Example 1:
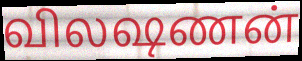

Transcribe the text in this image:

விலஷணன்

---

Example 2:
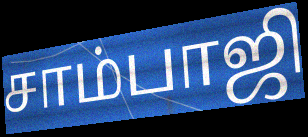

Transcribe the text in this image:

சாம்பாஜி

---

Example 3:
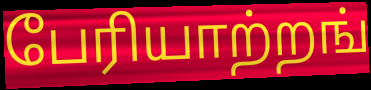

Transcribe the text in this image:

பேரியாற்றங்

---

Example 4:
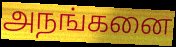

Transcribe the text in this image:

அநங்கனை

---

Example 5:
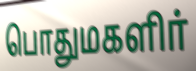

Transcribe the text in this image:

பொதுமகளிர்